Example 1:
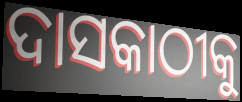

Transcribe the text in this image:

ଦାସକାଠୀକୁ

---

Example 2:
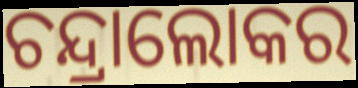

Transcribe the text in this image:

ଚନ୍ଦ୍ରାଲୋକର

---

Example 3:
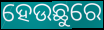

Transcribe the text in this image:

ହେଉଛୁରେ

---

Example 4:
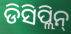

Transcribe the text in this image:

ଡିସିପ୍ଲିନ୍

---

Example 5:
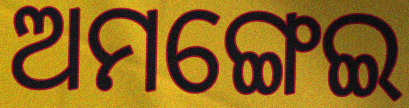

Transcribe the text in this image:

ଅମଙ୍ଗେଇ